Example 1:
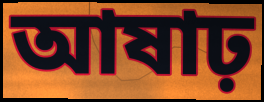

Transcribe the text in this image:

আষাঢ়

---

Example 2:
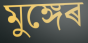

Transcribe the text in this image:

মুঙ্গেৰ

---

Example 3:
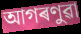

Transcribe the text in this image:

আগৰণুৱা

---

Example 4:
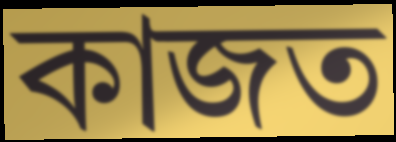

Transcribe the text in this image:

কাজত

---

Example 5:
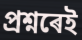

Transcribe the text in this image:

প্ৰশ্নৰেই